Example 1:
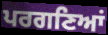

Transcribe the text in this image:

ਪਰਗਣਿਆਂ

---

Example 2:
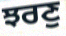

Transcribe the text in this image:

ਝਰਣੁ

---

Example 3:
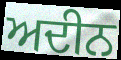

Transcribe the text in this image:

ਅਦੀਨ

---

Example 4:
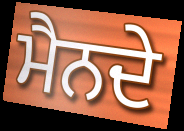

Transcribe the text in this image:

ਮੈਨਦੇ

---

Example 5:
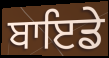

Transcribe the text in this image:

ਬਾਇਡੇ